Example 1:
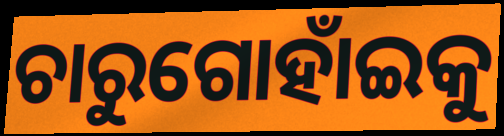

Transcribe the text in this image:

ଚାରୁଗୋହାଁଇକୁ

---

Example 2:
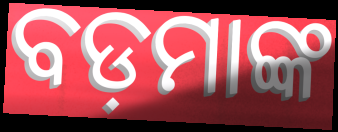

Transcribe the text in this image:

ବଡ଼ମାଙ୍କ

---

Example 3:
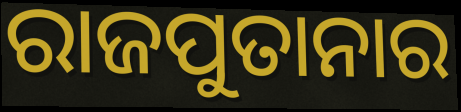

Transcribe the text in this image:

ରାଜପୁତାନାର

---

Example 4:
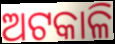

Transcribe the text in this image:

ଅଟକାଳି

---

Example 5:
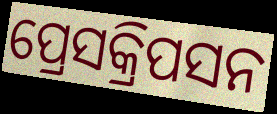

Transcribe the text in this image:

ପ୍ରେସକ୍ରିପସନ